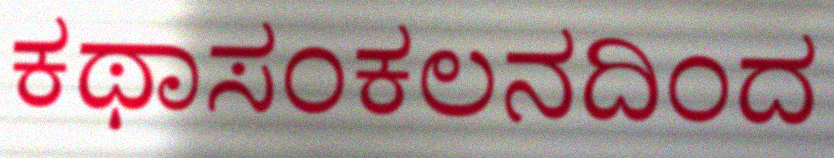
ಕಥಾಸಂಕಲನದಿಂದ